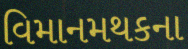
વિમાનમથકના